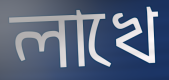
লাখে